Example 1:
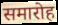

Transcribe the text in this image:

समारोह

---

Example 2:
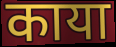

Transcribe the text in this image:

काया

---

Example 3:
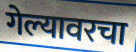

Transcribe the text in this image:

गेल्यावरचा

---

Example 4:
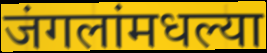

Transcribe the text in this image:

जंगलांमधल्या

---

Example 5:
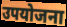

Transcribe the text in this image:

उपयोजना